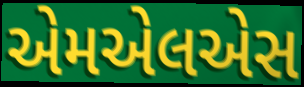
એમએલએસ